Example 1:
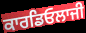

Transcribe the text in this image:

ਕਾਰਡਿਓਲਾਜੀ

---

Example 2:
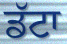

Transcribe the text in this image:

ਡੱਟਾ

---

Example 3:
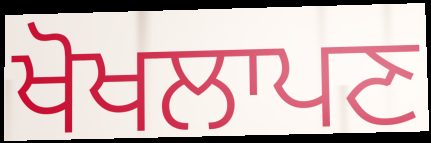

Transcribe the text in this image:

ਖੋਖਲਾਪਣ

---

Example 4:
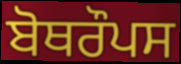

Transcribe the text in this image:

ਬੋਥਰੌਪਸ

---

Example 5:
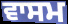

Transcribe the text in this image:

ਵਾਸਮ